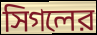
সিগলের